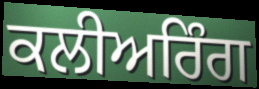
ਕਲੀਅਰਿੰਗ